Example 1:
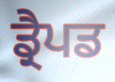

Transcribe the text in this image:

ਡ੍ਰੈਪਡ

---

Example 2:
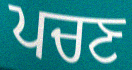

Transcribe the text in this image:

ਪਚਣ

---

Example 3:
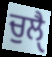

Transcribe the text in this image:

ਚੁਲੈੑ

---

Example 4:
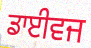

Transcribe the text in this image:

ਡਾਈਵਜ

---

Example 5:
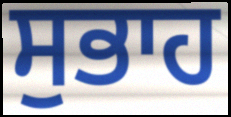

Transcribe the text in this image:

ਸੁਭਾਹ